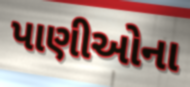
પાણીઓના